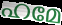
ഹമേ